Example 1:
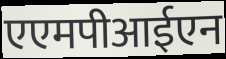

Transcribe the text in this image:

एएमपीआईएन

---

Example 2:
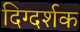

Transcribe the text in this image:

दिग्दर्शक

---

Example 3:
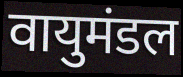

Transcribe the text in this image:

वायुमंडल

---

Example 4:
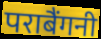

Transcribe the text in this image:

पराबैंगनी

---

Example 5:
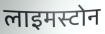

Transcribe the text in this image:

लाइमस्टोन